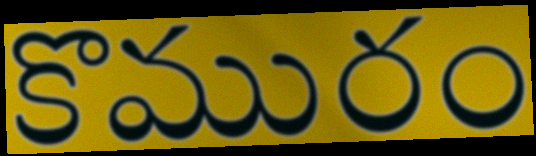
కొమురం